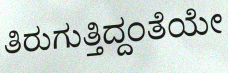
ತಿರುಗುತ್ತಿದ್ದಂತೆಯೇ